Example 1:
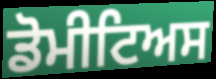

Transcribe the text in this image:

ਡੋਮੀਟਿਅਸ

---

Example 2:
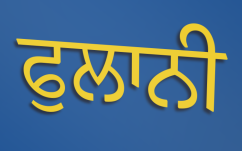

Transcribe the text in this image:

ਫੁਲਾਨੀ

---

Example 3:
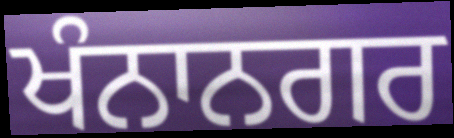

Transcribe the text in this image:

ਖੰਨਾਨਗਰ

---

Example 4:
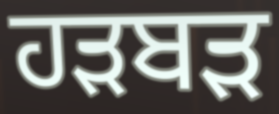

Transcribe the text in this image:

ਹੜਬੜ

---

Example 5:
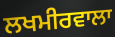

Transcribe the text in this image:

ਲਖਮੀਰਵਾਲਾ